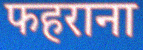
फहराना